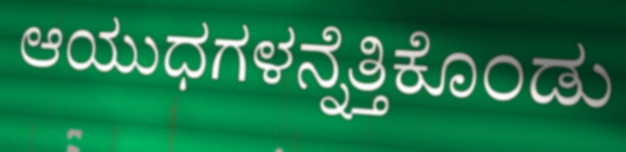
ಆಯುಧಗಳನ್ನೆತ್ತಿಕೊಂಡು